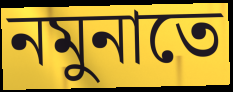
নমুনাতে